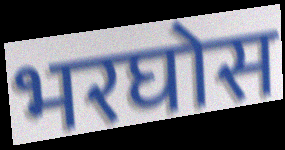
भरघोस